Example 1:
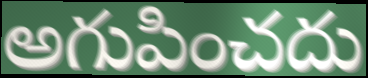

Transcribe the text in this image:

అగుపించదు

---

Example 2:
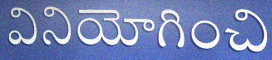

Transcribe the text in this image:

వినియోగించి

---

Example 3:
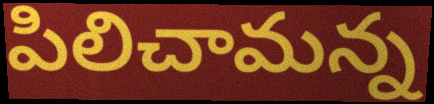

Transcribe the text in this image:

పిలిచామన్న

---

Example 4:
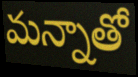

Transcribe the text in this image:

మన్నాతో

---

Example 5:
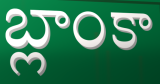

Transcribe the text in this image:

బ్లాంకా